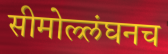
सीमोल्लंघनच